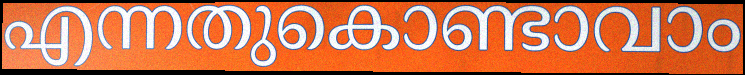
എന്നതുകൊണ്ടാവാം